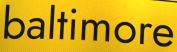
baltimore